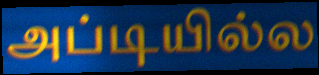
அப்டியில்ல